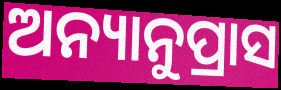
ଅନ୍ୟାନୁପ୍ରାସ